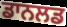
ਡਾਨਲਡ